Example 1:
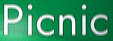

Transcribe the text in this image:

Picnic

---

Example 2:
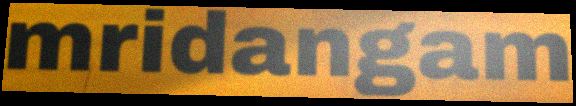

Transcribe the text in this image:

mridangam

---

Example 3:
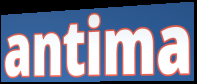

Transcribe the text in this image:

antima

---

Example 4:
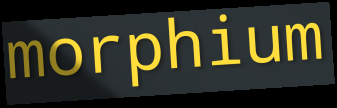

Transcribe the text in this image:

morphium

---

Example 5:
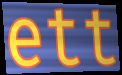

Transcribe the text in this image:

ett